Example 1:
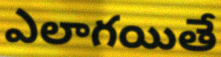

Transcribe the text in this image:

ఎలాగయితే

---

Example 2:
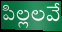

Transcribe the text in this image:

పిల్లలవే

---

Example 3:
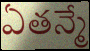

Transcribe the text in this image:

ఏతన్మే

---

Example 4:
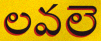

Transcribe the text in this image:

లవలె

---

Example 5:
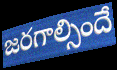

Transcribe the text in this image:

జరగాల్సిందే